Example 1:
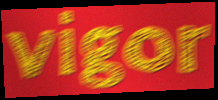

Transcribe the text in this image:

vigor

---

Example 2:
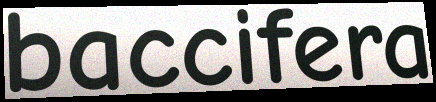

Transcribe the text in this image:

baccifera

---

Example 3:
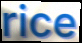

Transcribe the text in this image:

rice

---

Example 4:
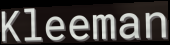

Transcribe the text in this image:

Kleeman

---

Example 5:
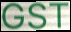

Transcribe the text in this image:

GST